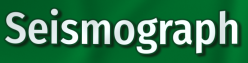
Seismograph